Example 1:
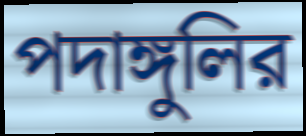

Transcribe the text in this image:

পদাঙ্গুলির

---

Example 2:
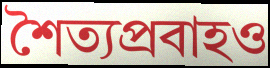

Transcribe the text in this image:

শৈত্যপ্রবাহও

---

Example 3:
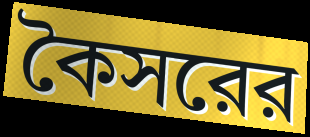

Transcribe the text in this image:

কৈসরের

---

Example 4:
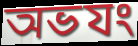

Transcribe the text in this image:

অভযং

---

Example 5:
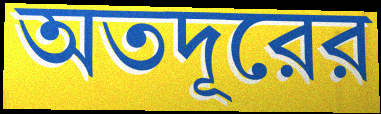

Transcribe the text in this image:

অতদূরের